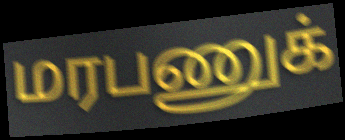
மரபணுக்